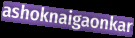
ashoknaigaonkar